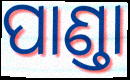
ପାଣ୍ଡା